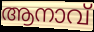
ആനാവ്